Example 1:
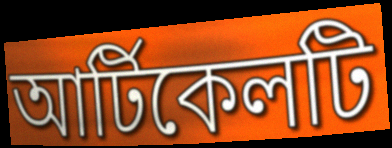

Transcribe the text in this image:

আর্টিকেলটি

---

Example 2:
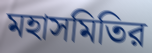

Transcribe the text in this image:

মহাসমিতির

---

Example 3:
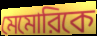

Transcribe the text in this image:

মেমোরিকে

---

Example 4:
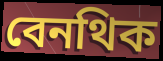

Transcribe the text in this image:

বেনথিক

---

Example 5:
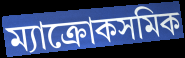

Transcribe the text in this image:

ম্যাক্রোকসমিক